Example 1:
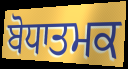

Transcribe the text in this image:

ਬੋਧਾਤਮਕ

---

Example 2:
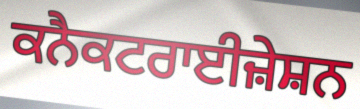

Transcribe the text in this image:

ਕਨੈਕਟਰਾਈਜ਼ੇਸ਼ਨ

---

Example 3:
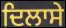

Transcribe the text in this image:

ਦਿਲਾਸੇ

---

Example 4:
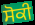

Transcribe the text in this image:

ਸੋਕੀ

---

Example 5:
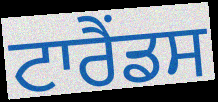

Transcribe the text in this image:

ਟਾਰੈਂਡਸ